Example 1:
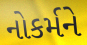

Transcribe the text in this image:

નોકર્મને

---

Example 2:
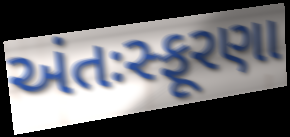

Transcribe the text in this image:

અંતઃસ્ફૂરણા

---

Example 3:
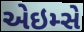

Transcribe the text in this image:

એઇમ્સે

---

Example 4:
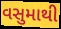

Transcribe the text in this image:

વસુમાથી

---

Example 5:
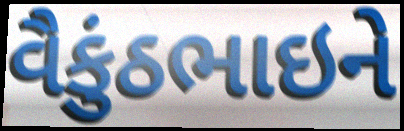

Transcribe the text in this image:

વૈકુંઠભાઇને